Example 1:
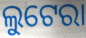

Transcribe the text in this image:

ଲୁଟେରା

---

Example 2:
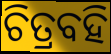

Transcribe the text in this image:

ଚିତ୍ରବହି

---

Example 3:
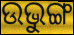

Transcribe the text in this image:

ଉଭୁଙ୍ଗ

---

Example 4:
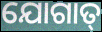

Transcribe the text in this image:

ଯୋଗାତ୍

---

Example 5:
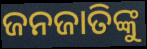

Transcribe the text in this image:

ଜନଜାତିଙ୍କୁ